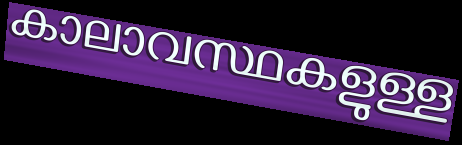
കാലാവസ്ഥകളുള്ള